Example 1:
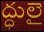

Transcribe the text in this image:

ద్ధులై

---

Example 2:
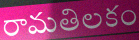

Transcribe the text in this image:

రామతిలకం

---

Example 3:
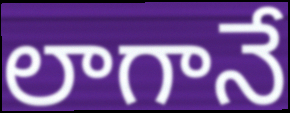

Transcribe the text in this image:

లాగానే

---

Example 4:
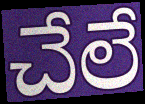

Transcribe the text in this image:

చేలే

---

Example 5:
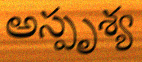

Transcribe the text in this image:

అస్పృశ్య